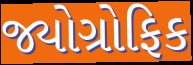
જ્યોગ્રોફિક